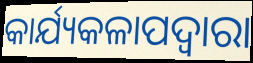
କାର୍ଯ୍ୟକଳାପଦ୍ୱାରା